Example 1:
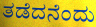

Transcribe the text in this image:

ತಡೆದನೆಂದು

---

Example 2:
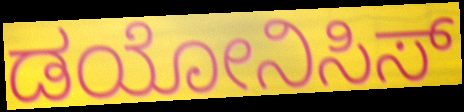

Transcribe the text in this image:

ಡಯೋನಿಸಿಸ್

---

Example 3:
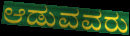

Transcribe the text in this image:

ಆಡುವವರು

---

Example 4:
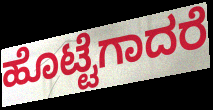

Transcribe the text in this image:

ಹೊಟ್ಟೆಗಾದರೆ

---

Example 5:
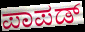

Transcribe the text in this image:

ಪಾಪಡ್